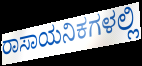
ರಾಸಾಯನಿಕಗಳಲ್ಲಿ